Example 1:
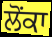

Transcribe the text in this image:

ਲੋਂਕਾ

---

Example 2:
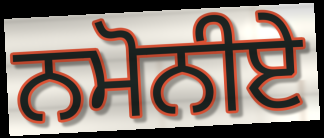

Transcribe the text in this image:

ਨਮੋਨੀਏ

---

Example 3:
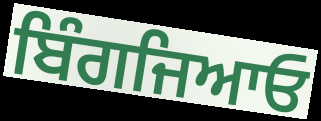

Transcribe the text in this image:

ਬਿੰਗਜਿਆਓ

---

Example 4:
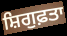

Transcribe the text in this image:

ਸ਼ਿਗੁਫ਼ਤਾ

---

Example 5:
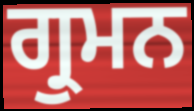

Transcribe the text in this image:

ਗ੍ਰੁਮਨ